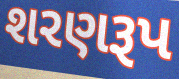
શરણરૂપ